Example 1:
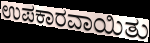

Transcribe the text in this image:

ಉಪಕಾರವಾಯಿತು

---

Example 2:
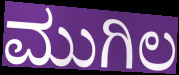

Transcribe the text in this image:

ಮುಗಿಲ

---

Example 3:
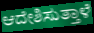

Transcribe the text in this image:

ಆದೇಶಿಸುತ್ತಾಳೆ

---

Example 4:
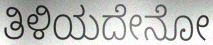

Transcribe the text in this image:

ತಿಳಿಯದೇನೋ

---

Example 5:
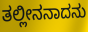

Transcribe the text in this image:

ತಲ್ಲೀನನಾದನು